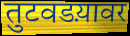
तुटवडय़ावर